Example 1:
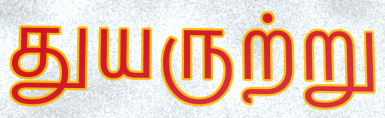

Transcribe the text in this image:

துயருற்று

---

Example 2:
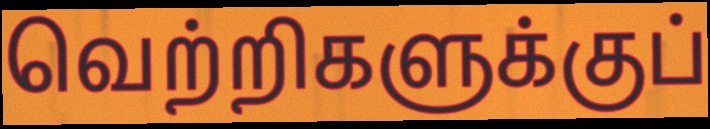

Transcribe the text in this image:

வெற்றிகளுக்குப்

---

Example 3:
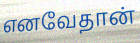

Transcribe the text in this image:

எனவேதான்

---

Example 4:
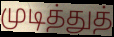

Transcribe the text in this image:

முடித்துத்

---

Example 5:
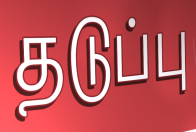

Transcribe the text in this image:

தடுப்பு